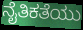
ನೈತಿಕತೆಯು